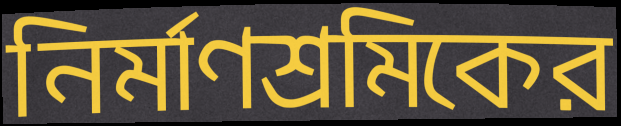
নির্মাণশ্রমিকের